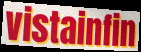
vistainfin